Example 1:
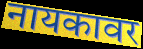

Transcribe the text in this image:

नायकावर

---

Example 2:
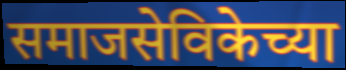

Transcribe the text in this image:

समाजसेविकेच्या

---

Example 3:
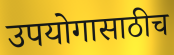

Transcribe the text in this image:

उपयोगासाठीच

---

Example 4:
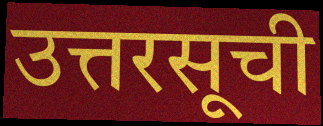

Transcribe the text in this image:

उत्तरसूची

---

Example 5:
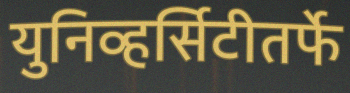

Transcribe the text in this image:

युनिव्हर्सिटीतर्फे